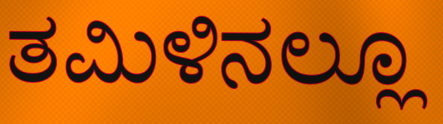
ತಮಿಳಿನಲ್ಲೂ